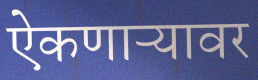
ऐकणाऱ्यावर